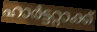
ഹാർട്ടറ്റാക്ക്